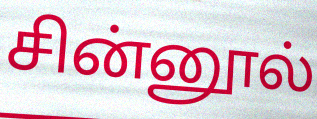
சின்னூல்